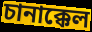
চানাক্কেল